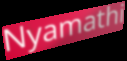
Nyamathi